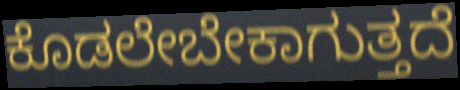
ಕೊಡಲೇಬೇಕಾಗುತ್ತದೆ